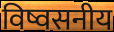
विष्वसनीय